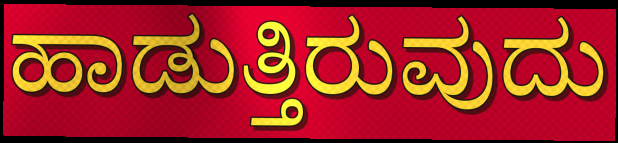
ಹಾಡುತ್ತಿರುವುದು